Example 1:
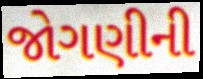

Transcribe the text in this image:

જોગણીની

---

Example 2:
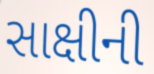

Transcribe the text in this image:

સાક્ષીની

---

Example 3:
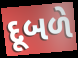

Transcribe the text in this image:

દૂબળે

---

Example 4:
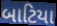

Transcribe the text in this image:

બાટિયા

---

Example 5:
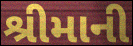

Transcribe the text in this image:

શ્રીમાની